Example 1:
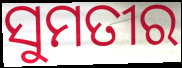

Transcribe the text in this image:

ସୁମତୀର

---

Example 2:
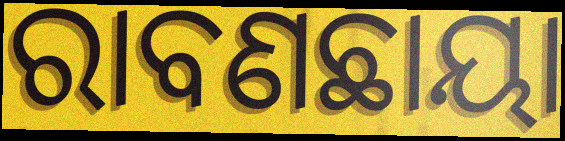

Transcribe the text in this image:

ରାବଣଛାୟା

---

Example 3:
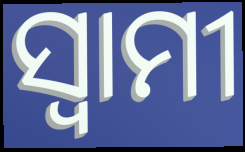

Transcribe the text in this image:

ସ୍ବାମୀ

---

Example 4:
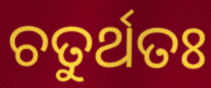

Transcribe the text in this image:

ଚତୁର୍ଥତଃ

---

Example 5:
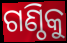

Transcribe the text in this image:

ଗଣ୍ଠିକୁ